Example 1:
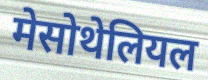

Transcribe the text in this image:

मेसोथेलियल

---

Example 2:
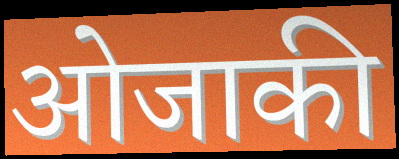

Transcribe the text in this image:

ओजाकी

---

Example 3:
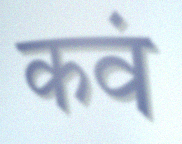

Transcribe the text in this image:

कवं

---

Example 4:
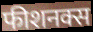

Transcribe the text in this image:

फीशनक्स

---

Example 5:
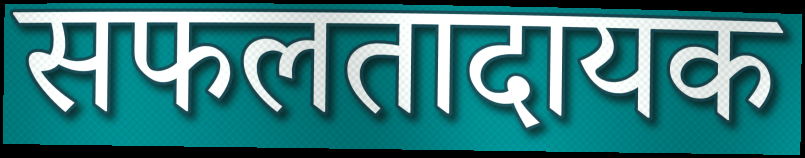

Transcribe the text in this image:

सफलतादायक